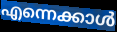
എന്നെക്കാൾ